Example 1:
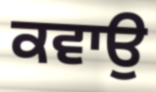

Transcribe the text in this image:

ਕਵਾਉ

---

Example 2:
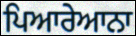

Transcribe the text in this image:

ਪਿਆਰੇਆਨਾ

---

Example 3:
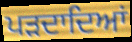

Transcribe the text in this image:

ਪੜਦਾਦਿਆਂ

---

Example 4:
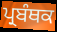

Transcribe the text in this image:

ਪ੍ਰਬੰਥਕ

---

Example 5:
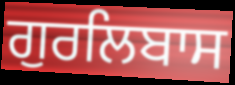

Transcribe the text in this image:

ਗੁਰਲਿਬਾਸ